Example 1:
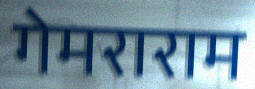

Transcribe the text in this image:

गेमराराम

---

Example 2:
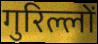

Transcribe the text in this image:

गुरिल्लों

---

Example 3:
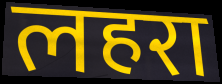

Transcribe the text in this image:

लहरा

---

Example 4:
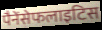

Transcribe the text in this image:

पैनेंसेफलाइटिस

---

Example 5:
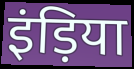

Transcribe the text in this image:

इंड़िया